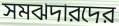
সমঝদারদের